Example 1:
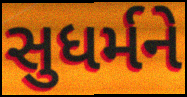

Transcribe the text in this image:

સુધર્મને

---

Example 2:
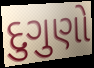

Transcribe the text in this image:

દુગુણો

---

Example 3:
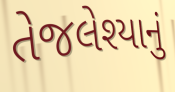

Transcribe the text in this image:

તેજલેશ્યાનું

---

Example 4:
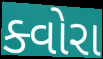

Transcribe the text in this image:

ક્વોરા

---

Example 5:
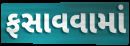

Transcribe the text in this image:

ફસાવવામાં